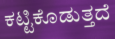
ಕಟ್ಟಿಕೊಡುತ್ತದೆ